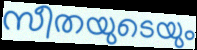
സീതയുടെയും